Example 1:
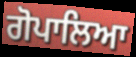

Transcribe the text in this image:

ਗੋਪਾਲਿਆ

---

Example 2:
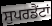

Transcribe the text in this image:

ਸੁਪਰਡੈਂਟਾਂ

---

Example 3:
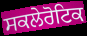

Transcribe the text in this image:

ਸਕਲੇਰੋਟਿਕ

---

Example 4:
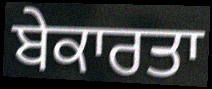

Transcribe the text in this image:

ਬੇਕਾਰਤਾ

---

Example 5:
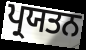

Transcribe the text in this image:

ਪ੍ਰਯਤਨ